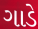
ગાડે